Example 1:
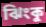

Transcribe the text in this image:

ঝিংকু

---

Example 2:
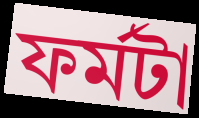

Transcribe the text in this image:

ফর্মটা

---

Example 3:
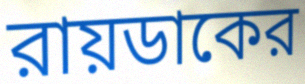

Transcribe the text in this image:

রায়ডাকের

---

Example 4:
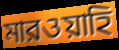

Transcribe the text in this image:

মারওয়াহি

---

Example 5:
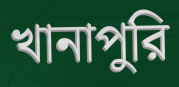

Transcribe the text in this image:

খানাপুরি